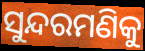
ସୁନ୍ଦରମଣିକୁ